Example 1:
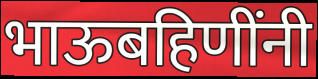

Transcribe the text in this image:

भाऊबहिणींनी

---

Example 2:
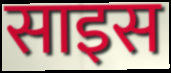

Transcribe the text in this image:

साइस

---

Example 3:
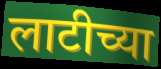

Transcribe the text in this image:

लाटीच्या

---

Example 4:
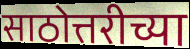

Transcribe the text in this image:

साठोत्तरीच्या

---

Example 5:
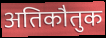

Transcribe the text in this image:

अतिकौतुक